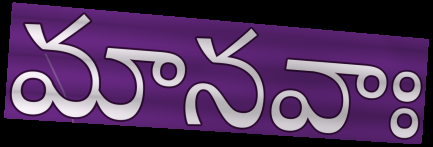
మానవాః